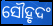
ସୌହୃଦଂ